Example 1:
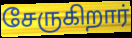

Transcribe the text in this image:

சேருகிறார்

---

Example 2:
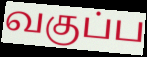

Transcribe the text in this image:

வகுப்ப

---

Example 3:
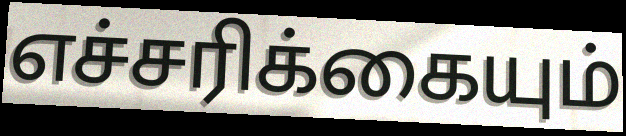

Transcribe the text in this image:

எச்சரிக்கையும்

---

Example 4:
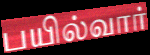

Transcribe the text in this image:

பயில்வார்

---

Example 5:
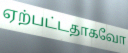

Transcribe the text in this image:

ஏற்பட்டதாகவோ